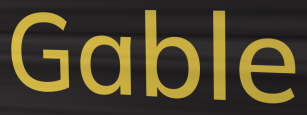
Gable